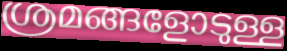
ശ്രമങ്ങളോടുള്ള